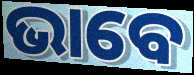
ଭାବେ